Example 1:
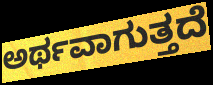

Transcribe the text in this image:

ಅರ್ಥವಾಗುತ್ತದೆ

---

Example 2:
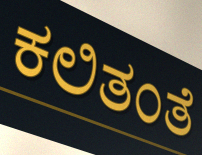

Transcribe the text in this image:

ಕಲಿತಂತೆ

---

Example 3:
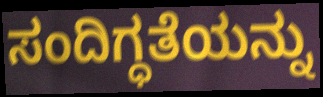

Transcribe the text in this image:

ಸಂದಿಗ್ಧತೆಯನ್ನು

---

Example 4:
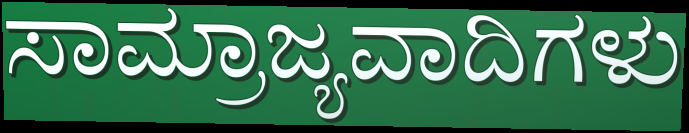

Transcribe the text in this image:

ಸಾಮ್ರಾಜ್ಯವಾದಿಗಳು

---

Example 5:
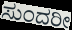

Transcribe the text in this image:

ಸುಂದರೀ